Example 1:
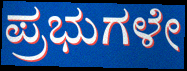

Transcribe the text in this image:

ಪ್ರಭುಗಳೇ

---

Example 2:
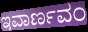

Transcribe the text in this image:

ಇವಾರ್ಣವಂ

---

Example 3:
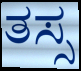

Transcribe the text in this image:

ತಸ್ಸ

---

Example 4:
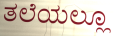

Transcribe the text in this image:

ತಲೆಯಲ್ಲೂ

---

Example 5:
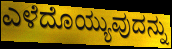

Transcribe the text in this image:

ಎಳೆದೊಯ್ಯುವುದನ್ನು